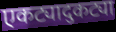
एकट्यादुकट्या